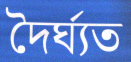
দৈৰ্ঘ্যত